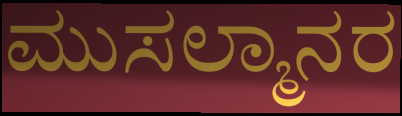
ಮುಸಲ್ಮಾನರ